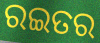
ରଇତର